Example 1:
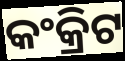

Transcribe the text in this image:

କଂକ୍ରିଟ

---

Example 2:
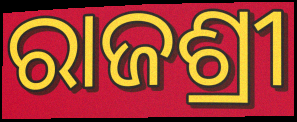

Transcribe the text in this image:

ରାଜଶ୍ରୀ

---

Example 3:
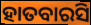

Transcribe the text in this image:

ହାତବାରସି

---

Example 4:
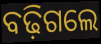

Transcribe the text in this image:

ବଢ଼ିଗଲେ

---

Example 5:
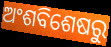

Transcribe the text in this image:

ଅଂଶବିଶେଷରୁ